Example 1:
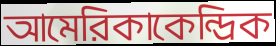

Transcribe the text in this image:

আমেরিকাকেন্দ্রিক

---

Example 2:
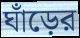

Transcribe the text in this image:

ঘাঁড়ের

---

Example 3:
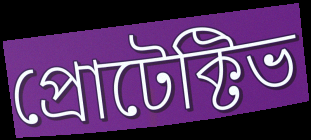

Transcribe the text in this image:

প্রোটেক্টিভ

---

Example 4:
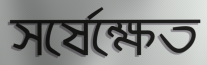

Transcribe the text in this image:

সর্ষেক্ষেত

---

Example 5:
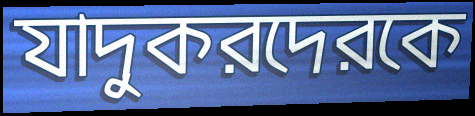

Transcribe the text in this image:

যাদুকরদেরকে